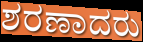
ಶರಣಾದರು